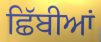
ਛਿੱਬੀਆਂ